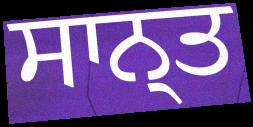
ਸਾਨ੍ਤ